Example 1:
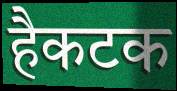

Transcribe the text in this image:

हैकटक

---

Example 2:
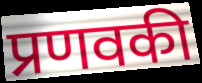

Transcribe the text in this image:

प्रणवकी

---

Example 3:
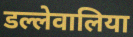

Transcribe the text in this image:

डल्लेवालिया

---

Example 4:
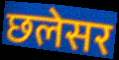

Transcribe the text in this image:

छलेसर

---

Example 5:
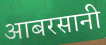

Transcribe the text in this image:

आबरसानी